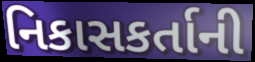
નિકાસકર્તાની